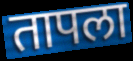
तापला